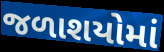
જળાશયોમાં